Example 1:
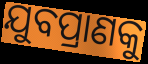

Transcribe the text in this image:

ଯୁବପ୍ରାଣକୁ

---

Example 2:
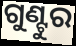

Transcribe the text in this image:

ଗୁଣ୍ଟୁର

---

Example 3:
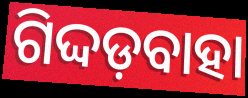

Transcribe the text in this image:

ଗିଦ୍ଦଡ଼ବାହା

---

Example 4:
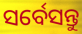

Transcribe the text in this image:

ସର୍ବେସନ୍ତୁ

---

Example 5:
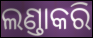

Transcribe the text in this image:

ଲଣ୍ଡାକରି